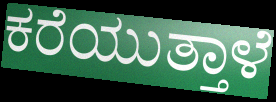
ಕರೆಯುತ್ತಾಳೆ